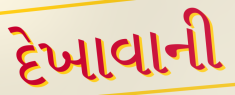
દેખાવાની